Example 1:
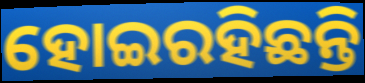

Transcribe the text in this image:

ହୋଇରହିଛନ୍ତି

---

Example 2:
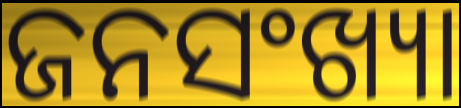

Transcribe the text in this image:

ଜନସଂଖ୍ଯା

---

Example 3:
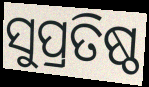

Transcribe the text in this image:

ସୁପ୍ରତିଷ୍ଠ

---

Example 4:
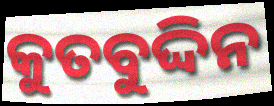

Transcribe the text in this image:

କୁତବୁଦ୍ଦିନ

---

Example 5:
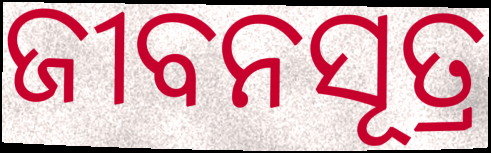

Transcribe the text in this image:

ଜୀବନସୂତ୍ର